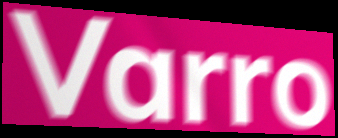
Varro